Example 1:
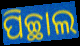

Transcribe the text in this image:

ପିଚ୍ଛାଲ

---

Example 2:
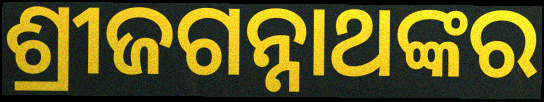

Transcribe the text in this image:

ଶ୍ରୀଜଗନ୍ନାଥଙ୍କର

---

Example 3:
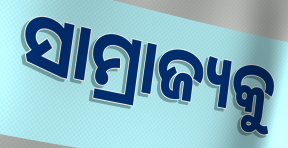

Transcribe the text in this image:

ସାମ୍ରାଜ୍ୟକୁ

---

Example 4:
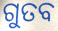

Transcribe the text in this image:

ଗୁତବ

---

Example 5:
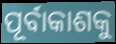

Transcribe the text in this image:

ପୂର୍ବାକାଶକୁ